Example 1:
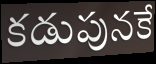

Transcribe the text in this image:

కడుపునకే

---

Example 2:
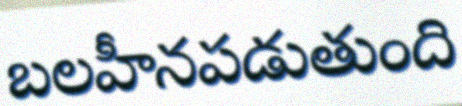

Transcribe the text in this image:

బలహీనపడుతుంది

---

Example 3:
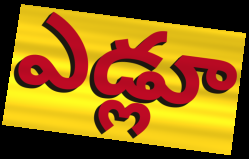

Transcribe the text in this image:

ఎడ్లూ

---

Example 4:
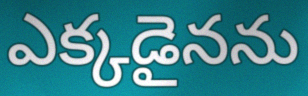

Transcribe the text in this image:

ఎక్కడైనను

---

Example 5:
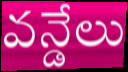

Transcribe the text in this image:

వన్డేలు